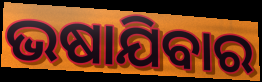
ଭଷାଯିବାର